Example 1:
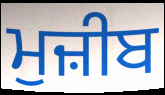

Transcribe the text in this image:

ਮੁਜ਼ੀਬ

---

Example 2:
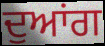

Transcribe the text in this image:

ਦੁਆਂਗ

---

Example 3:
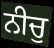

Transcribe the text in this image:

ਨੀਚੁ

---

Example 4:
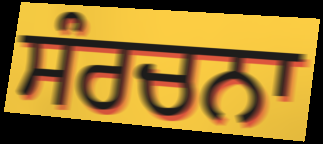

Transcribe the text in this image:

ਸੰਰਚਨਾ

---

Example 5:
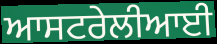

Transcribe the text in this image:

ਆਸਟਰੇਲੀਆਈ